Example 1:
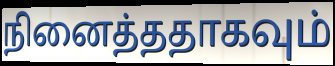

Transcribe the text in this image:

நினைத்ததாகவும்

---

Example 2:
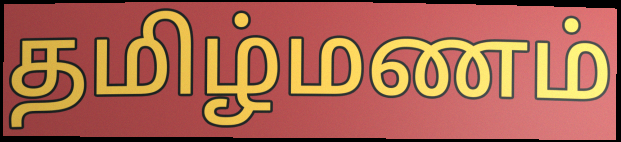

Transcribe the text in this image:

தமிழ்மணம்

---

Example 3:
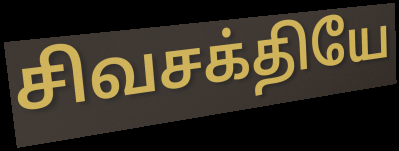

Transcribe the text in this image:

சிவசக்தியே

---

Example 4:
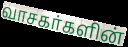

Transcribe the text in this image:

வாசகர்களின்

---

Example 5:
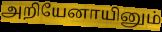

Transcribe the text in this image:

அறியேனாயினும்